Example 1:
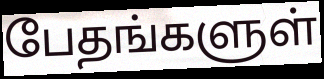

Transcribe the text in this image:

பேதங்களுள்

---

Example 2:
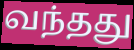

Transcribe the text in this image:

வந்தது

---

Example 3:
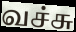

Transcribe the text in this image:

வச்சு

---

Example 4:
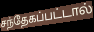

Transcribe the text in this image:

சந்தேகப்பட்டால்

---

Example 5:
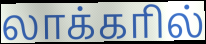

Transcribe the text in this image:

லாக்கரில்